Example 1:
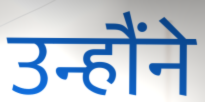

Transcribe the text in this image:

उन्हौंने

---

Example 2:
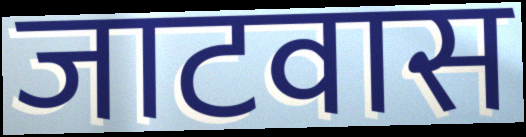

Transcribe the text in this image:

जाटवास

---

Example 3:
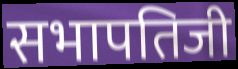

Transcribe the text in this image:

सभापतिजी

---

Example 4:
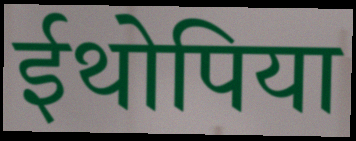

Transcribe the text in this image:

ईथोपिया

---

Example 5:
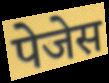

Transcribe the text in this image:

पेजेस